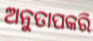
ଅନୁତାପକରି